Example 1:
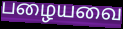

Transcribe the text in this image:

பழையவை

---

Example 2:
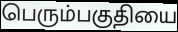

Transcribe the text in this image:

பெரும்பகுதியை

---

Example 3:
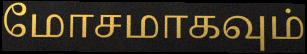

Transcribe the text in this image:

மோசமாகவும்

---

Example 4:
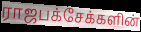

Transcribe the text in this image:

ராஜபக்சேக்களின்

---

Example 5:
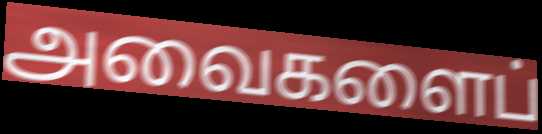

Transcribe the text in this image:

அவைகளைப்